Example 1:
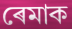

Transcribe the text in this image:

ৰেমাক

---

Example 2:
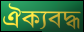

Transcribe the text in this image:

ঐক্যবদ্ধ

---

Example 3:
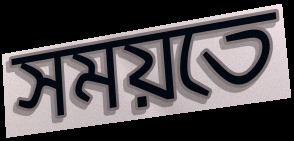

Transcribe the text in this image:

সময়তে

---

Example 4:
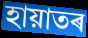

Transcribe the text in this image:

হায়াতৰ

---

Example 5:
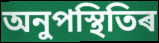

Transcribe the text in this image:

অনুপস্থিতিৰ